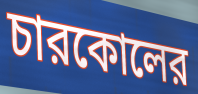
চারকোলের